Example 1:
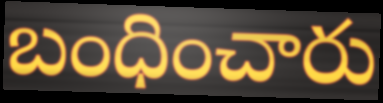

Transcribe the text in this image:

బంధించారు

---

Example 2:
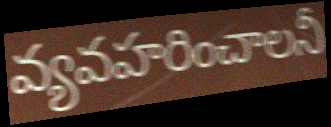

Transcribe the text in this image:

వ్యవహరించాలనీ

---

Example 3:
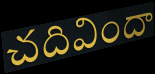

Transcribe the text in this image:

చదివిందా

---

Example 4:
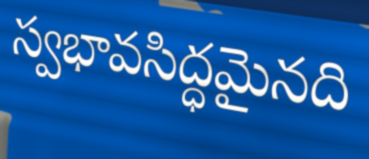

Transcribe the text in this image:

స్వభావసిద్ధమైనది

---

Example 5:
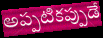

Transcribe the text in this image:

అప్పటికప్పుడే